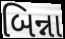
બિન્ના